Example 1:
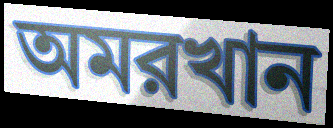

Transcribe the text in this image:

অমরখান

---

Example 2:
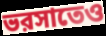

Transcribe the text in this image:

ভরসাতেও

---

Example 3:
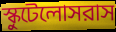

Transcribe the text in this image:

স্কুটেলোসরাস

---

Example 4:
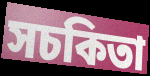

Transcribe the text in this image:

সচকিতা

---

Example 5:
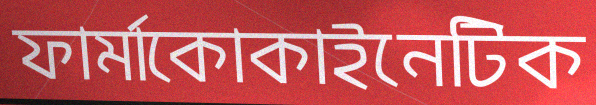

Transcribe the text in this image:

ফার্মাকোকাইনেটিক